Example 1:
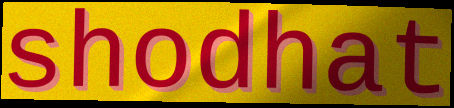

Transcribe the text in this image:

shodhat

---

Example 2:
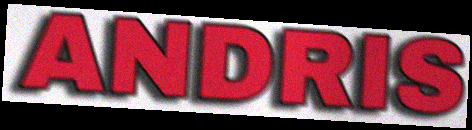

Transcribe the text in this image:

ANDRIS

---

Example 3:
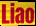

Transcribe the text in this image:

Liao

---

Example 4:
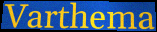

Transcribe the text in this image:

Varthema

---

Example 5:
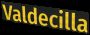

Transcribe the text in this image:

Valdecilla